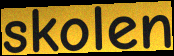
skolen